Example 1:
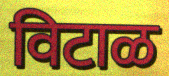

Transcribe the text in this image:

विटाळ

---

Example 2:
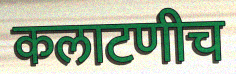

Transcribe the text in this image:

कलाटणीच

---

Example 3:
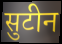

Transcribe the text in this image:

सुटीन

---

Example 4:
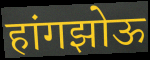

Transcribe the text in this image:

हांगझोऊ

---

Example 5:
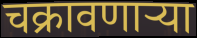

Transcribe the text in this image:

चक्रावणाऱ्या